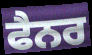
ਫੈਨਰ